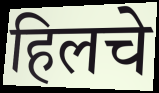
हिलचे